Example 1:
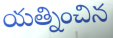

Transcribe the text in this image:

యత్నించిన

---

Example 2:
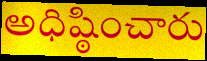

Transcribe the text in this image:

అధిష్ఠించారు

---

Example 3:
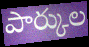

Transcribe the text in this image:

పార్కుల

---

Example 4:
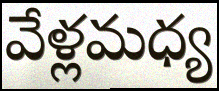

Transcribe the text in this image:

వేళ్లమధ్య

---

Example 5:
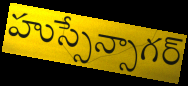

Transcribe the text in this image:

హుస్సేన్సాగర్